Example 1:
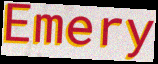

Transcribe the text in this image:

Emery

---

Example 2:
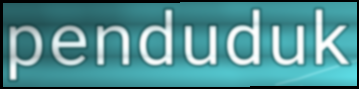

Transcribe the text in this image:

penduduk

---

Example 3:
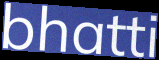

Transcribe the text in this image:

bhatti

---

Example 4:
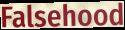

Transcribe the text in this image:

Falsehood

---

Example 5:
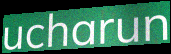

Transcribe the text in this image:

ucharun